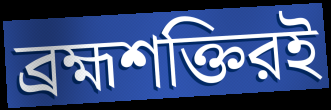
ব্রহ্মশক্তিরই